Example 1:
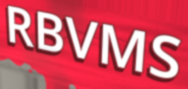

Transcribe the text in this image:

RBVMS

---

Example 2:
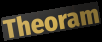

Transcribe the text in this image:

Theoram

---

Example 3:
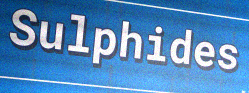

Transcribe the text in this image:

Sulphides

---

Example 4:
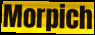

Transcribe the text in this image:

Morpich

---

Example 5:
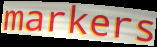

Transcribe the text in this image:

markers